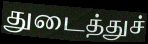
துடைத்துச்